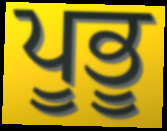
ਪੂਭੂ